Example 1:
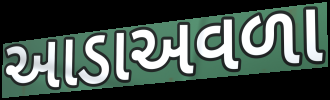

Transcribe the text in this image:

આડાઅવળા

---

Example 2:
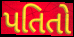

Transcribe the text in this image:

પતિતો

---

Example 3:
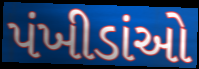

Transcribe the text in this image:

પંખીડાંઓ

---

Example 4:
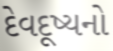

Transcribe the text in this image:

દેવદૂષ્યનો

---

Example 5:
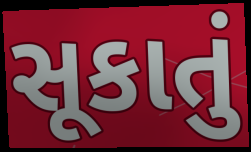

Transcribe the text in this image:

સૂકાતું